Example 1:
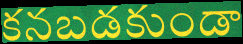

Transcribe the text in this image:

కనబడకుండా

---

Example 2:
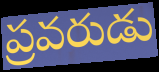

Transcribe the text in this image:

ప్రవరుడు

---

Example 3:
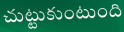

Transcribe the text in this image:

చుట్టుకుంటుంది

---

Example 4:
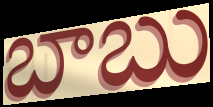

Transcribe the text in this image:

బాబు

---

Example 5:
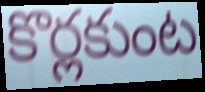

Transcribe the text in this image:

కొర్లకుంట